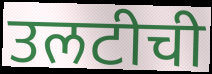
उलटीची